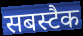
सबस्टैक